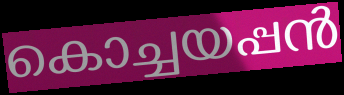
കൊച്ചയപ്പൻ